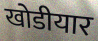
खोडीयार